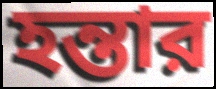
হন্তার